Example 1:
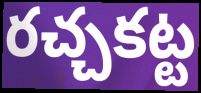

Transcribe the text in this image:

రచ్చకట్ట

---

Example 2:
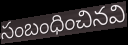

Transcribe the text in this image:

సంబంధించినవి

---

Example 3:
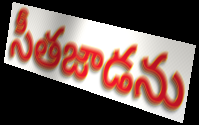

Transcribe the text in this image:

సీతజాడను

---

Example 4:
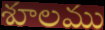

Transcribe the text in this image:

శూలము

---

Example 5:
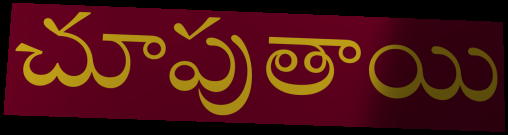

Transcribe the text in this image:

చూపుతాయి